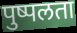
पुष्पलता